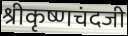
श्रीकृष्णचंदजी